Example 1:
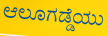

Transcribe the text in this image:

ಆಲೂಗಡ್ಡೆಯು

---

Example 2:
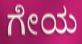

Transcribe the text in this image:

ಗೇಯ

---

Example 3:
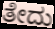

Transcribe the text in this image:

ತೇದು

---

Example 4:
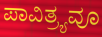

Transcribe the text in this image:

ಪಾವಿತ್ರ್ಯವೂ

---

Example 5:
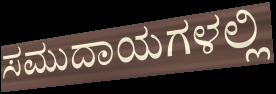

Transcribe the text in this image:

ಸಮುದಾಯಗಳಲ್ಲಿ